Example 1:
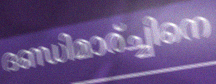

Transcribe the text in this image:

ദണ്ഡിമാര്ച്ചിനെ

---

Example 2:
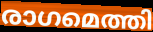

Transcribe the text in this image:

രാഗമെത്തി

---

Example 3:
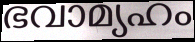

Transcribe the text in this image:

ഭവാമ്യഹം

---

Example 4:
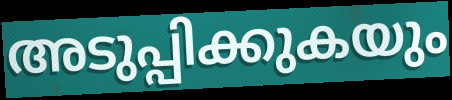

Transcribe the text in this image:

അടുപ്പിക്കുകയും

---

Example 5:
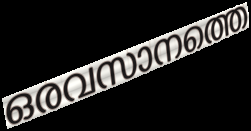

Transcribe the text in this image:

ഒരവസാനത്തെ